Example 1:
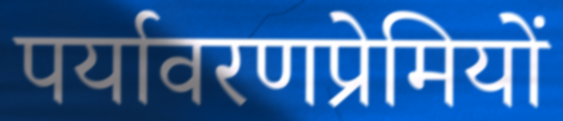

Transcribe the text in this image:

पर्यावरणप्रेमियों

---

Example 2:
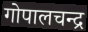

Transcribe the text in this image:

गोपालचन्द्र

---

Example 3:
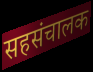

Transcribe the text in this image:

सहसंचालक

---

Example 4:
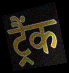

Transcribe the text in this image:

ट्रैंक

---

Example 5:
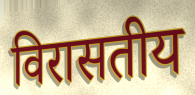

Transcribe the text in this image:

विरासतीय